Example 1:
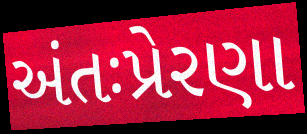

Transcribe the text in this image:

અંતઃપ્રેરણા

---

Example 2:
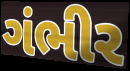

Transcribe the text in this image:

ગંભીર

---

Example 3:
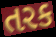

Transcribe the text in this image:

તરક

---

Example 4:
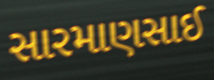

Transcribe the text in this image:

સારમાણસાઈ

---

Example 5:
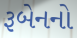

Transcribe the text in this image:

રૂબેનનો